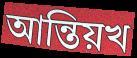
আন্তিয়খ